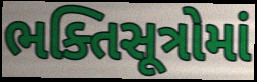
ભક્તિસૂત્રોમાં